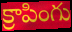
క్రాపింగు